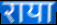
राया